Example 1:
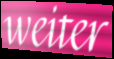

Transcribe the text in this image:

weiter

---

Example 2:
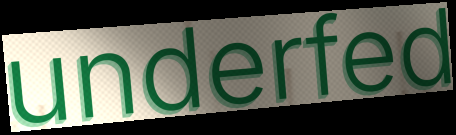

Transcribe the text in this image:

underfed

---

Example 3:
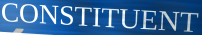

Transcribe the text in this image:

CONSTITUENT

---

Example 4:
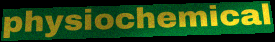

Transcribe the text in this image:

physiochemical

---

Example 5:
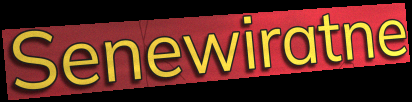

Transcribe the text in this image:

Senewiratne